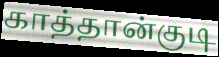
காத்தான்குடி